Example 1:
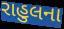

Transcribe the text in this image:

રાહુલના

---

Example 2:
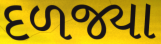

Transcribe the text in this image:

દળજ્યા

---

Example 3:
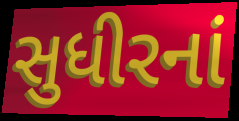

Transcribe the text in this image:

સુધીરનાં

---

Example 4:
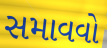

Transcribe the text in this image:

સમાવવો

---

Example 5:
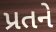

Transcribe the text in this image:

પ્રતને